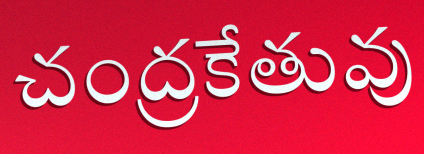
చంద్రకేతువు